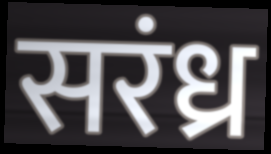
सरंध्र